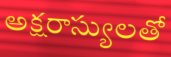
అక్షరాస్యులతో